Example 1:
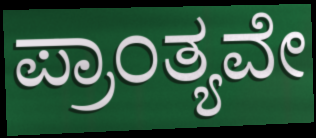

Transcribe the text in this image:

ಪ್ರಾಂತ್ಯವೇ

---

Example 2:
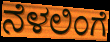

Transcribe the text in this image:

ನೆಳಲಿಂಗೆ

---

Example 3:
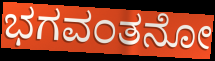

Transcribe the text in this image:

ಭಗವಂತನೋ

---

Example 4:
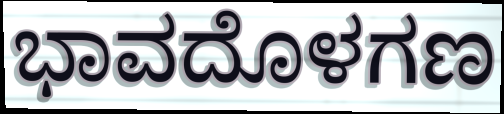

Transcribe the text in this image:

ಭಾವದೊಳಗಣ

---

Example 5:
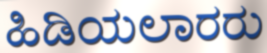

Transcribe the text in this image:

ಹಿಡಿಯಲಾರರು